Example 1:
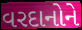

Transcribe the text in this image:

વરદાનોને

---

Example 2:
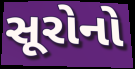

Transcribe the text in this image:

સૂરોનો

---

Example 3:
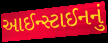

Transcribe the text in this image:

આઈન્સ્ટાઈનનું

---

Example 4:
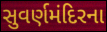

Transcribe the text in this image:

સુવર્ણમંદિરના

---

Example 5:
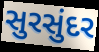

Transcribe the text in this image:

સુરસુંદર